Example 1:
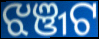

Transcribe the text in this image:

ଝଞ୍ଜଟ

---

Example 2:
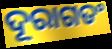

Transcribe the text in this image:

ଦୂରାଗତଂ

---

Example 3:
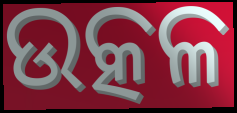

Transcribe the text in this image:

ଉତ୍କଳ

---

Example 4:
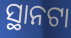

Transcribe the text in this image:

ସ୍ଥାନଟା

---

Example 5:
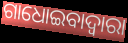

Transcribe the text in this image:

ଗାଧୋଇବାଦ୍ଵାରା